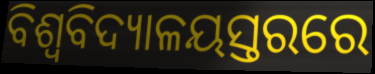
ବିଶ୍ୱବିଦ୍ୟାଳୟସ୍ତରରେ